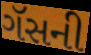
ગૅસની